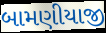
બામણીયાજી